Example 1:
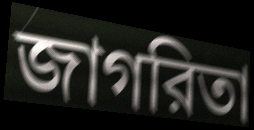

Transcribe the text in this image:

জাগরিতা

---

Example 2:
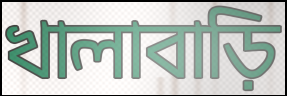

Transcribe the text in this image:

খালাবাড়ি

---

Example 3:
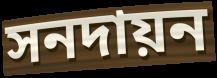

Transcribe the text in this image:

সনদায়ন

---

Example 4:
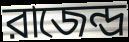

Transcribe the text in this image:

রাজেন্দ্র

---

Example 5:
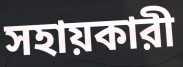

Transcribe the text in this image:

সহায়কারী